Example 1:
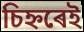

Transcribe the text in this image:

চিহ্নৰেই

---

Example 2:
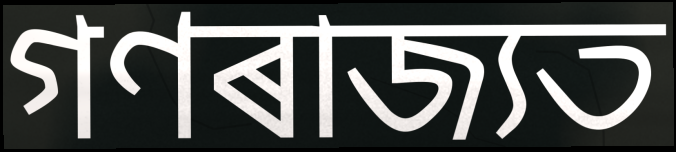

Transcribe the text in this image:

গণৰাজ্যত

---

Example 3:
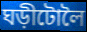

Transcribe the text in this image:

ঘড়ীটোলৈ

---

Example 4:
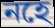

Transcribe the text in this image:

নহে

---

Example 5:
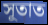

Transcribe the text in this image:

সূতাত